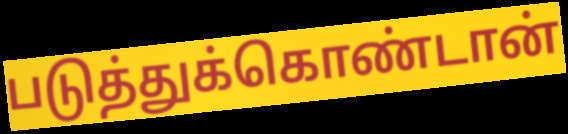
படுத்துக்கொண்டான்